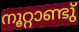
നൂറ്റാണ്ടു്